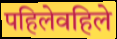
पहिलेवहिले